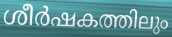
ശീർഷകത്തിലും